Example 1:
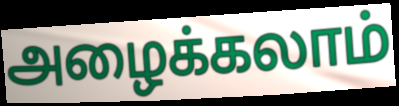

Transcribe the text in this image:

அழைக்கலாம்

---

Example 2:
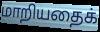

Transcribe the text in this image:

மாறியதைக்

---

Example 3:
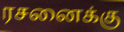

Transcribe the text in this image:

ரசனைக்கு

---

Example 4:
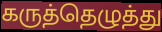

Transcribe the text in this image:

கருத்தெழுத்து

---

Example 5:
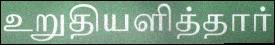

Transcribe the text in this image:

உறுதியளித்தார்